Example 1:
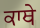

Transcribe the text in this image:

ਕਾਥੇ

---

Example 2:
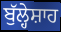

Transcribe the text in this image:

ਬੁੱਲ੍ਹੇਸ਼ਾਹ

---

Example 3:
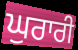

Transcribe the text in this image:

ਘੁਰਾਰੀ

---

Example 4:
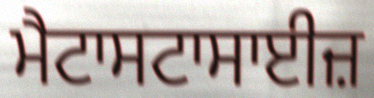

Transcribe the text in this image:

ਮੈਟਾਸਟਾਸਾਈਜ਼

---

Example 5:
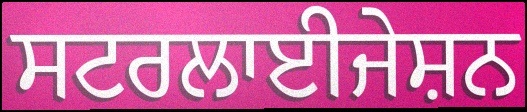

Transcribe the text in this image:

ਸਟਰਲਾਈਜੇਸ਼ਨ